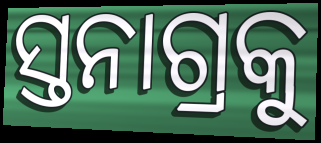
ସ୍ତନାଗ୍ରକୁ